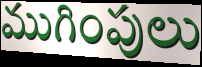
ముగింపులు